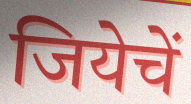
जियेचें